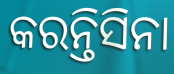
କରନ୍ତିସିନା